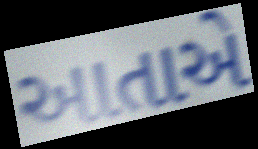
આતાએ